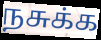
நசுக்க